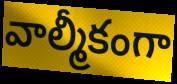
వాల్మీకంగా